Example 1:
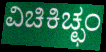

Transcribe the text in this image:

ವಿಚಿಕಿಚ್ಛಂ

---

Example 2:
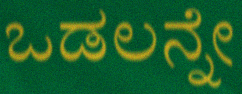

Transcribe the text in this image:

ಒಡಲನ್ನೇ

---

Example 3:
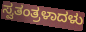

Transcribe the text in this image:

ಸ್ವತಂತ್ರಳಾದಳು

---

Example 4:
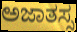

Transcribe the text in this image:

ಅಜಾತಸ್ಸ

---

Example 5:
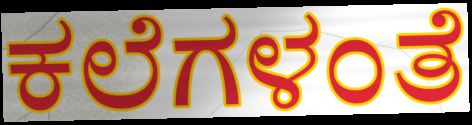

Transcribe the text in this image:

ಕಲೆಗಳಂತೆ